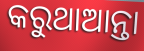
କରୁଥାଆନ୍ତା